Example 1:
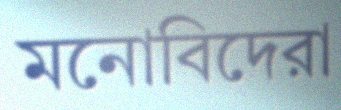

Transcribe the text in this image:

মনোবিদেরা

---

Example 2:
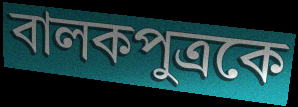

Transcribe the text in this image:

বালকপুত্রকে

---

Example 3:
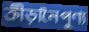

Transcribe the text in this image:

ক্রীড়ানৈপুণ্য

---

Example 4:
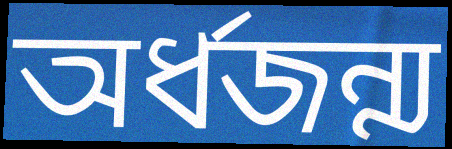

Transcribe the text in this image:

অর্ধজন্ম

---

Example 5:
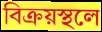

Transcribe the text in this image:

বিক্রয়স্থলে